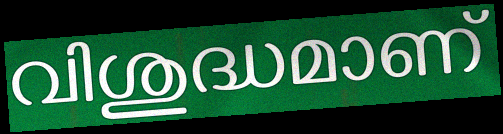
വിശുദ്ധമാണ്